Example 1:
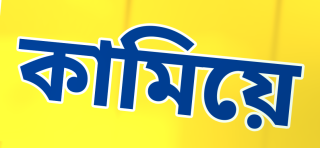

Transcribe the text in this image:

কামিয়ে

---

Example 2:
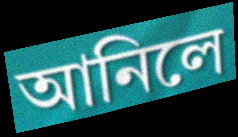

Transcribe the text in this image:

আনিলে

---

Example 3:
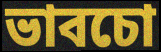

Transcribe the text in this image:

ভাবচো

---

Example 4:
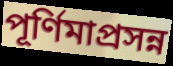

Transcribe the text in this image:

পূর্ণিমাপ্রসন্ন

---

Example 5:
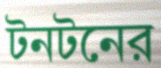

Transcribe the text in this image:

টনটনের